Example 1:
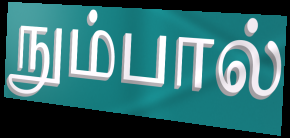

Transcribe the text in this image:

நும்பால்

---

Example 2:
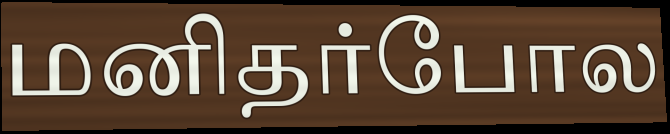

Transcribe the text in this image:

மனிதர்போல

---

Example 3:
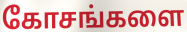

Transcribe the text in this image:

கோசங்களை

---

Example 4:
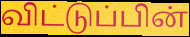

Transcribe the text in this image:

விட்டுப்பின்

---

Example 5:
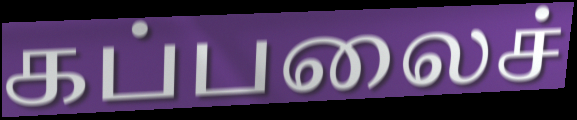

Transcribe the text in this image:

கப்பலைச்